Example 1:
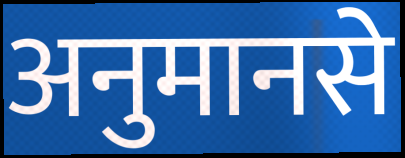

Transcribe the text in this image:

अनुमानसे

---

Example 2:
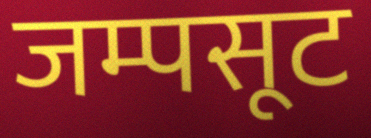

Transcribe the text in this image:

जम्पसूट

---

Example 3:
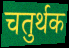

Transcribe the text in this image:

चतुर्थक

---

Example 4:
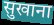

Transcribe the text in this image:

सुखाना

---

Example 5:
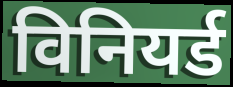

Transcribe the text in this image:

विनियर्ड